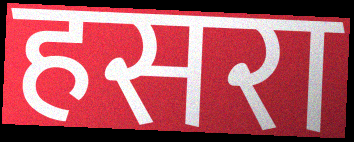
हसरा